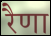
रैणा